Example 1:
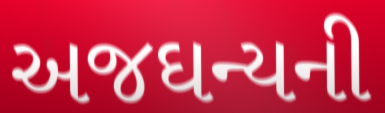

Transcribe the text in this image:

અજઘન્યની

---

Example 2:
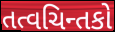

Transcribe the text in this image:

તત્વચિન્તકો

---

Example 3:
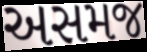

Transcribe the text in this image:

અસમજ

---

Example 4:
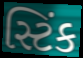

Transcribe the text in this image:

સ્ટિંક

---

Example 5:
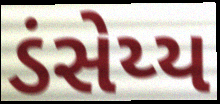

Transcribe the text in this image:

ડંસેય્ય